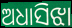
ଅଧାସିଝା